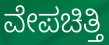
ವೇಪಚಿತ್ತಿ